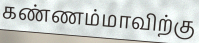
கண்ணம்மாவிற்கு